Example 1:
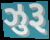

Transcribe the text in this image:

ઝુરૂ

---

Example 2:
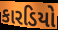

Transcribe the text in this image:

કારડિયો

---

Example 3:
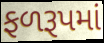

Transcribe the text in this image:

ફળરૂપમાં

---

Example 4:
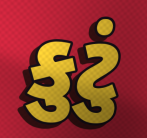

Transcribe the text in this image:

કુટું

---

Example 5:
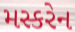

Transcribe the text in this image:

મસ્કરેન